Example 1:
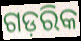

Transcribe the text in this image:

ଗଡ଼ରିକ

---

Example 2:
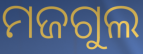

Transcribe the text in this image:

ମଜଗୁଲ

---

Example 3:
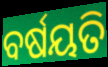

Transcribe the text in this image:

ବର୍ଷୟତି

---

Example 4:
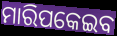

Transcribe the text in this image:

ମାରିପକେଇବ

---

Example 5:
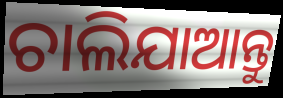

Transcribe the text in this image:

ଚାଲିଯାଆନ୍ତୁ